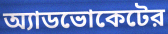
অ্যাডভোকেটের